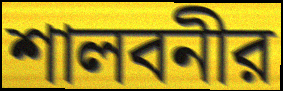
শালবনীর